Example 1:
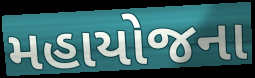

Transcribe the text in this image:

મહાયોજના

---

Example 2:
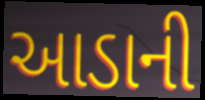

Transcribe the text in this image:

આડાની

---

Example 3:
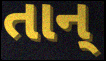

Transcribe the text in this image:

તાન્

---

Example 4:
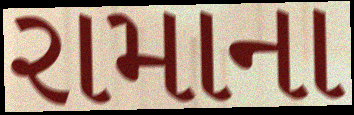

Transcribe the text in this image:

રામાના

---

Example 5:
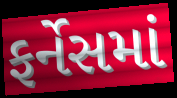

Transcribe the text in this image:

ફર્નેસમાં